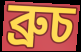
ব্ৰুচ